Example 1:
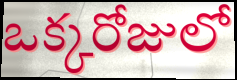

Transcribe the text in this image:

ఒక్కరోజులో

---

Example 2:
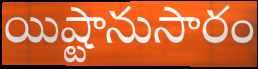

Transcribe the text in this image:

యిష్టానుసారం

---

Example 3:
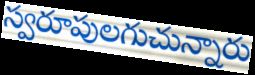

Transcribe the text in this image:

స్వరూపులగుచున్నారు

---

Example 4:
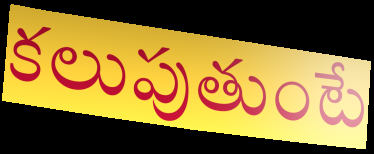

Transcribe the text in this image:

కలుపుతుంటే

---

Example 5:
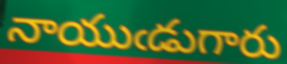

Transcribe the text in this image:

నాయుఁడుగారు